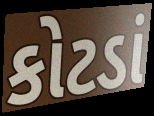
કોટડાં